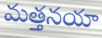
మత్తనయా